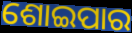
ଶୋଇପାର